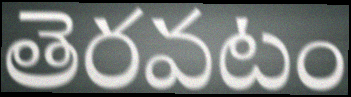
తెరవటం